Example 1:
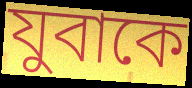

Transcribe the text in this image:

যুবাকে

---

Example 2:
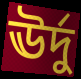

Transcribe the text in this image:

ঊর্দু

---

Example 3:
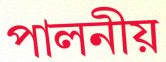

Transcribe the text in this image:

পালনীয়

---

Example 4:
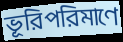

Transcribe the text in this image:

ভূরিপরিমাণে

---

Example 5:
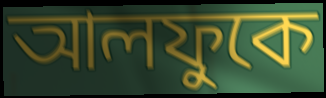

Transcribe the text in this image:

আলফুকে